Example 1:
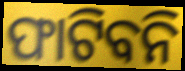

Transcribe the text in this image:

ଫାଟିବନି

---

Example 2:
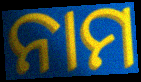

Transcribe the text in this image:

ନାମ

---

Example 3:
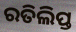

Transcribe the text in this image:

ରତିଲିପ୍ତ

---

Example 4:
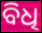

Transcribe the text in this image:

ବିଧି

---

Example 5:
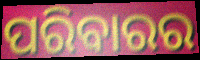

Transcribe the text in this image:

ପରିବାରର